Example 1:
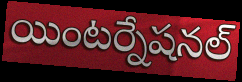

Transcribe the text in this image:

యింటర్నేషనల్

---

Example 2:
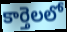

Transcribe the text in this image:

కార్తెలలో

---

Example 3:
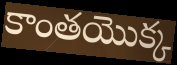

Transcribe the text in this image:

కాంతయొక్క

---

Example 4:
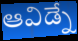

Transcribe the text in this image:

ఆవిడ్నే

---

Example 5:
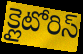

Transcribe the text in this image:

క్లైటోరిస్